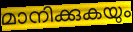
മാനിക്കുകയും